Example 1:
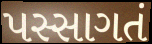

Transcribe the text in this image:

પસ્સાગતં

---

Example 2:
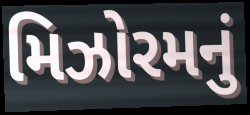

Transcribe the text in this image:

મિઝોરમનું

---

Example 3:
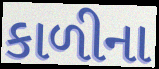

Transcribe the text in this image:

કાળીના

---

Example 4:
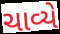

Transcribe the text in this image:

ચાવ્યે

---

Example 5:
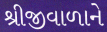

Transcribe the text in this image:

શ્રીજીવાળાને